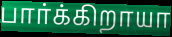
பார்க்கிறாயா